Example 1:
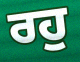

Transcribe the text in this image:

ਰਹੁ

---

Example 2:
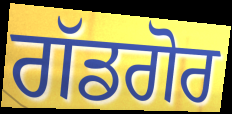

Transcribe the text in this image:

ਗੱਡਗੋਰ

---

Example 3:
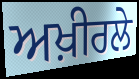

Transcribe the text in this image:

ਅਖ਼ੀਰਲੇ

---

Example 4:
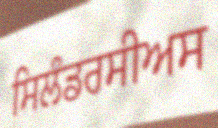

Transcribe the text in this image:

ਸਿਲੰਡਰਸੀਅਸ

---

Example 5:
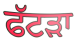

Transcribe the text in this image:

ਫੱਟੜਾ